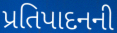
પ્રતિપાદનની